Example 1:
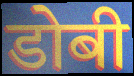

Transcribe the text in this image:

डोबी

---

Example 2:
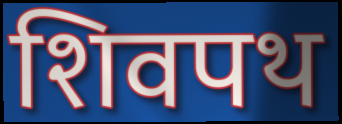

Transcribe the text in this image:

शिवपथ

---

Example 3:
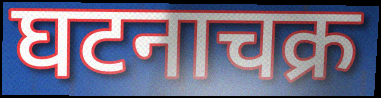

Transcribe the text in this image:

घटनाचक्र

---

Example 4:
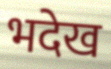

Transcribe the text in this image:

भदेख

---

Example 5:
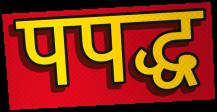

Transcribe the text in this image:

पपद्ध